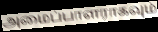
அமைப்பாளராகவும்